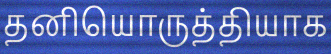
தனியொருத்தியாக